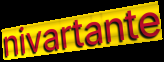
nivartante